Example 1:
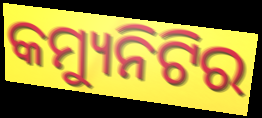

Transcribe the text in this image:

କମ୍ୟୁନିଟିର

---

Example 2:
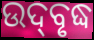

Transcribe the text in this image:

ଉଦ୍‌ବୃଦ୍ଧ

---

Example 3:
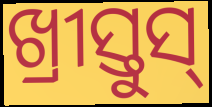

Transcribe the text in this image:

ଖ୍ରୀସ୍ତୁସ୍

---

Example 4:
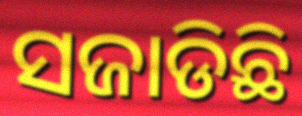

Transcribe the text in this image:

ସଜାଡିଛି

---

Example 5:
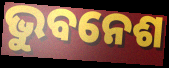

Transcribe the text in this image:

ଭୁବନେଶ